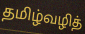
தமிழ்வழித்